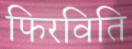
फिरविति